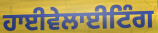
ਹਾਈਵੇਲਾਈਟਿੰਗ